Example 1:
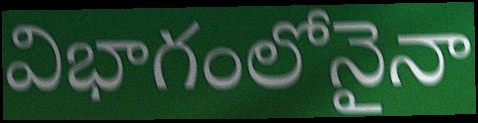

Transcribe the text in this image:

విభాగంలోనైనా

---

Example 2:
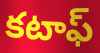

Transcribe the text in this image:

కటాఫ్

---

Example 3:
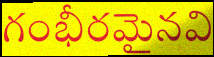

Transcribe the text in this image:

గంభీరమైనవి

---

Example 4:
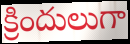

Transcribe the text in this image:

క్రిందులుగా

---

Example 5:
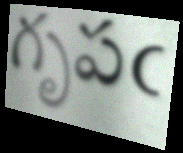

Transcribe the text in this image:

గృపఁ